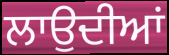
ਲਾਉਦੀਆਂ